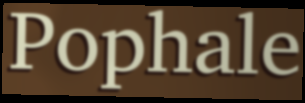
Pophale